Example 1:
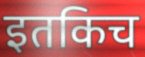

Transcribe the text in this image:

इतकिच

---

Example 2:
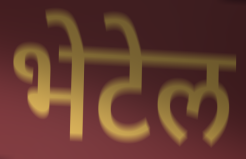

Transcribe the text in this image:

भेटेल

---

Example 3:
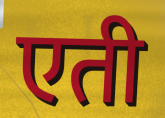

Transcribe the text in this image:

एती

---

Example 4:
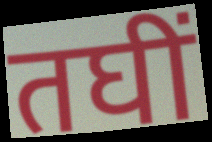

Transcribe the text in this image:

तघीं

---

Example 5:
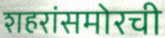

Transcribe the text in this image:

शहरांसमोरची